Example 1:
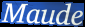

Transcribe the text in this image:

Maude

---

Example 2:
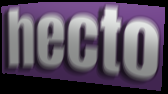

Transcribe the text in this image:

hecto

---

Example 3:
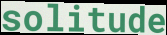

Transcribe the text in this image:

solitude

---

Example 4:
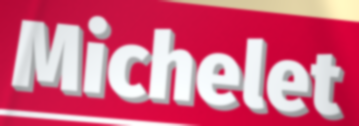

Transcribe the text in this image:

Michelet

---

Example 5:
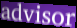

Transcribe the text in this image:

advisor